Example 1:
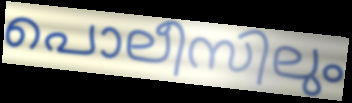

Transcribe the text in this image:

പൊലീസിലും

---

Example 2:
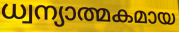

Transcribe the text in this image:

ധ്വന്യാത്മകമായ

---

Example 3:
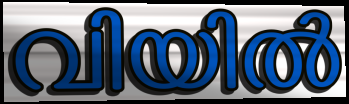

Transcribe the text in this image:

വിയിൽ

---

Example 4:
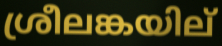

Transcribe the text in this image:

ശ്രീലങ്കയില്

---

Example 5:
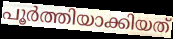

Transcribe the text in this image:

പൂർത്തിയാക്കിയത്